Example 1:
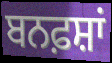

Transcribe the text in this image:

ਬਨਫ਼ਸ਼ਾਂ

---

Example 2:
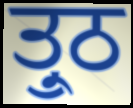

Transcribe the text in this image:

ਤ੍ਰੁਠ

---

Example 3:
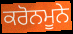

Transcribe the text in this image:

ਕਰੋਨਮੂਨੇ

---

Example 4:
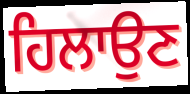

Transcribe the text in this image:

ਹਿਲਾਉਣ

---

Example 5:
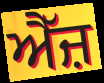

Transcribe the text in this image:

ਐੱਜ਼